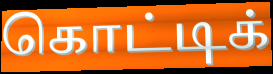
கொட்டிக்